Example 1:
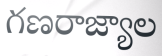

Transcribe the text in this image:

గణరాజ్యాల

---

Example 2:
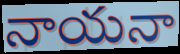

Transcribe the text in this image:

నాయనా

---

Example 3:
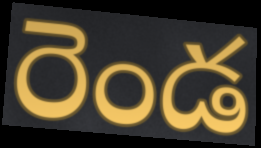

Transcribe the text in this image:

రెండ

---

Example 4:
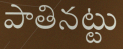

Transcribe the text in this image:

పాతినట్టు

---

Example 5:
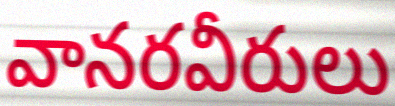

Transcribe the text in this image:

వానరవీరులు